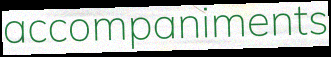
accompaniments